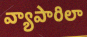
వ్యాపారిలా